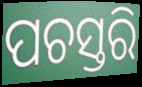
ପଚସ୍ତରି